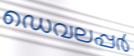
ഡെവലപ്പർ